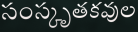
సంస్కృతకవుల